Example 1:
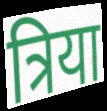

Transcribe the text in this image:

त्रिया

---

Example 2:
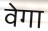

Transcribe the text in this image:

वेगा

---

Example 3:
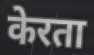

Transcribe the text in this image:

केरता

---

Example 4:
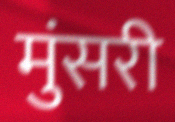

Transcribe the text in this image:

मुंसरी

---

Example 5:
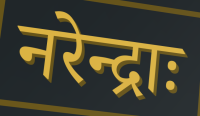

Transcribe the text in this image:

नरेन्द्राः